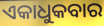
ଏକାଧୁକବାର